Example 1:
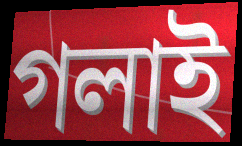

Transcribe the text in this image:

গলাই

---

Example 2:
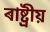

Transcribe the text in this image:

ৰাষ্ট্ৰীয়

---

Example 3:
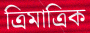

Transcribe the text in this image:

ত্ৰিমাত্ৰিক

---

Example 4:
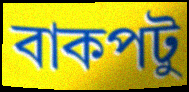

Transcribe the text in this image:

বাকপটু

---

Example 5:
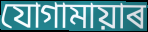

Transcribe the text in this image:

যোগামায়াৰ